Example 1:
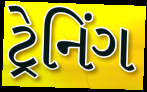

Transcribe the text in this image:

ટ્રેનિંગ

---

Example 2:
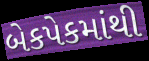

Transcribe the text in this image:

બેકપેકમાંથી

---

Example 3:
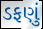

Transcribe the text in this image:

ડફણું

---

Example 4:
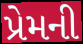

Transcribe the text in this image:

પ્રેમની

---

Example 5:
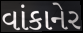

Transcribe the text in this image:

વાંકાનેર